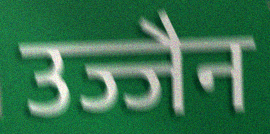
उज्जैन